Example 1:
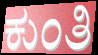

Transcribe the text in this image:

ಕುಂತಿ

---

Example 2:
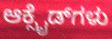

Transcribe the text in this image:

ಆಕ್ಸೈಡ್‌ಗಳು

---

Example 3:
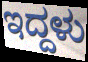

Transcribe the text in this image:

ಇದ್ದಳು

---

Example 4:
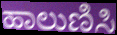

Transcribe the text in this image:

ಹಾಲುಣಿಸಿ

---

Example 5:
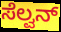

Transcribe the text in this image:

ಸೆಲ್ವನ್